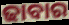
ଢାବାର